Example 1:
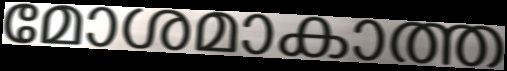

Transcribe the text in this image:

മോശമാകാത്ത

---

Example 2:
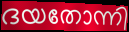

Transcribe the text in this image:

ദയതോന്നി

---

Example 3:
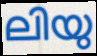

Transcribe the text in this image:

ലിയു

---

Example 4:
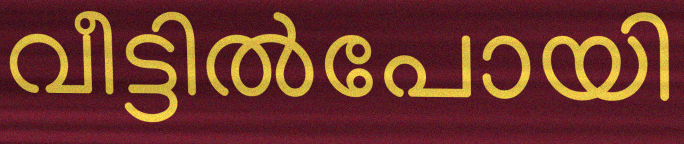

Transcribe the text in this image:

വീട്ടിൽപോയി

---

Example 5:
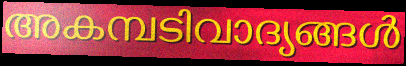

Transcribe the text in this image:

അകമ്പടിവാദ്യങ്ങൾ